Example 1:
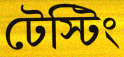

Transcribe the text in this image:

টেস্টিং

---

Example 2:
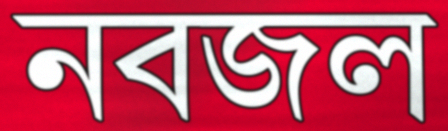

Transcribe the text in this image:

নবজল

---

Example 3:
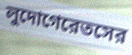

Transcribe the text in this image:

লুদোগেরেতসের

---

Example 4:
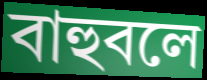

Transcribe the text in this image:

বাহুবলে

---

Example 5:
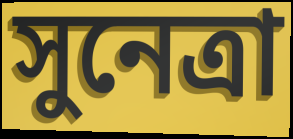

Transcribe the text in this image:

সুনেত্রা